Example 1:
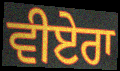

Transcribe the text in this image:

ਵੀਏਰਾ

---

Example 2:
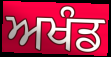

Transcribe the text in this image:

ਅਖੰਡ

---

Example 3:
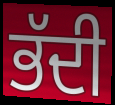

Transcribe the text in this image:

ਭੱਦੀ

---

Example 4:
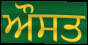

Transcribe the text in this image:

ਔਸਤ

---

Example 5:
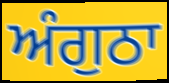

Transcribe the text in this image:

ਅੰਗੁਠਾ